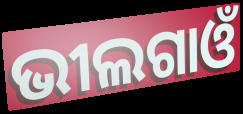
ଭୀଲଗାଓଁ